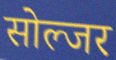
सोल्जर